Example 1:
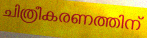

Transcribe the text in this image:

ചിത്രീകരണത്തിന്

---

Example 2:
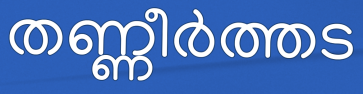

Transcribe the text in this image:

തണ്ണീർത്തട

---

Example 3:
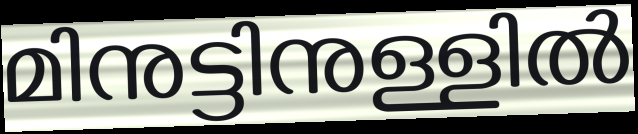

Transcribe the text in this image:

മിനുട്ടിനുള്ളിൽ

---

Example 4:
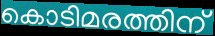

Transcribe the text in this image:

കൊടിമരത്തിന്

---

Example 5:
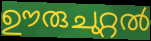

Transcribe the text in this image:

ഊരുചുറ്റൽ